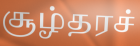
சூழ்தரச்